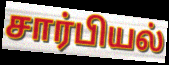
சார்பியல்